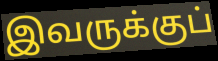
இவருக்குப்